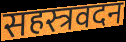
सहस्त्रवदन